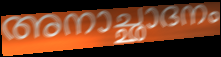
അനാച്ഛാദനം